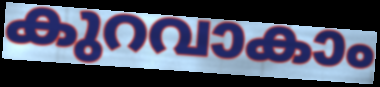
കുറവാകാം